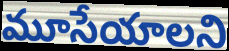
మూసేయాలని